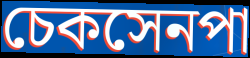
চেকসেনপা